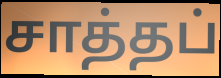
சாத்தப்